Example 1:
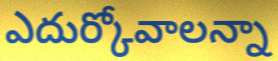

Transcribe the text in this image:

ఎదుర్కోవాలన్నా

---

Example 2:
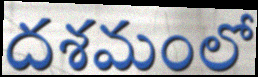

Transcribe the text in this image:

దశమంలో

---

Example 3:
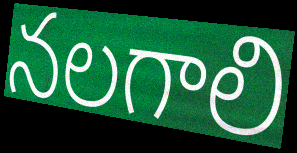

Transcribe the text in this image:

నలగాలి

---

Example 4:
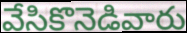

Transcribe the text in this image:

వేసికొనెడివారు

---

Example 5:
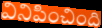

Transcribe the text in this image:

వినిపించింది